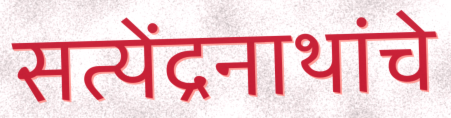
सत्येंद्रनाथांचे